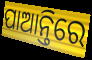
ପାଆନ୍ତିରେ